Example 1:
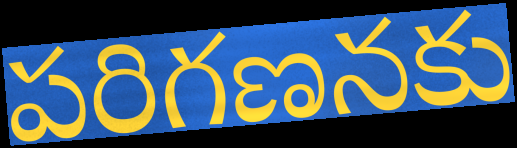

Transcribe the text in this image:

పరిగణనకు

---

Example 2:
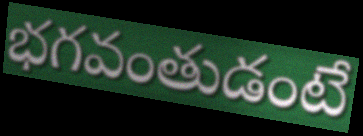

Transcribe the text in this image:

భగవంతుడంటే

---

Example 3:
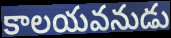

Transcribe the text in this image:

కాలయవనుడు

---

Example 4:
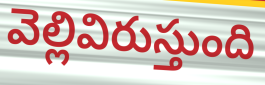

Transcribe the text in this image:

వెల్లివిరుస్తుంది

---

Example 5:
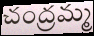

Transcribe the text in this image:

చంద్రమ్మ